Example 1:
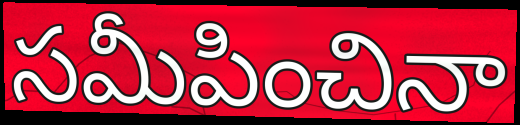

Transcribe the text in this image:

సమీపించినా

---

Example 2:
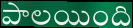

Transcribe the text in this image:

పాలయింది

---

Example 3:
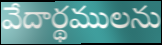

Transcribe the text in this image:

వేదార్థములను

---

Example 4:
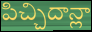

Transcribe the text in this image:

పిచ్చిదాన్లా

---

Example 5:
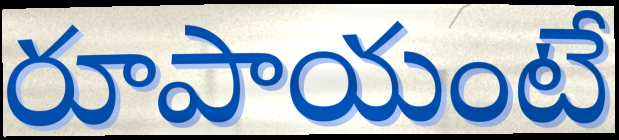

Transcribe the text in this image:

రూపాయంటే